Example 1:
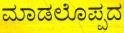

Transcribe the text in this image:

ಮಾಡಲೊಪ್ಪದ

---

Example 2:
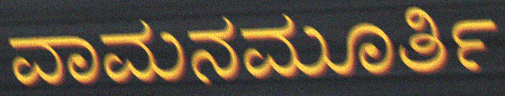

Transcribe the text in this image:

ವಾಮನಮೂರ್ತಿ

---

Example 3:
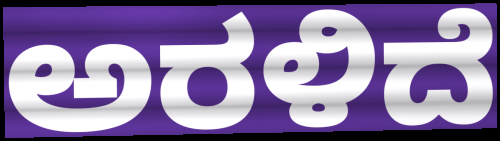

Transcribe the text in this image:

ಅರಳಿದೆ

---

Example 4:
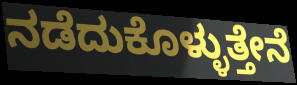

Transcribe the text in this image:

ನಡೆದುಕೊಳ್ಳುತ್ತೇನೆ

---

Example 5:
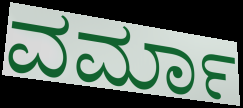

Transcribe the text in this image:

ವರ್ಮಾ